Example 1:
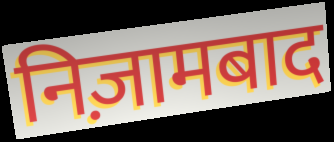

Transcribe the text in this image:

निज़ामबाद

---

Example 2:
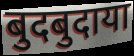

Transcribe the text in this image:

बुदबुदाया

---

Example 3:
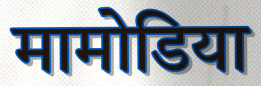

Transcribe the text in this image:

मामोडिया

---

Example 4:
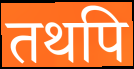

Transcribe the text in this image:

तथपि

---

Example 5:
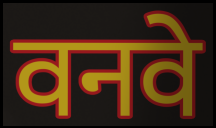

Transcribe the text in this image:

वनवे